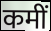
कमीं